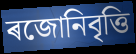
ৰজোনিবৃত্তি